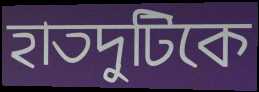
হাতদুটিকে